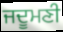
ਜਦੂਮਣੀ